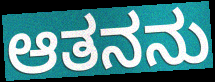
ಆತನನು